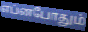
எப்னபோதும்